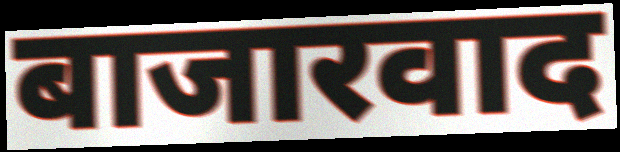
बाजारवाद